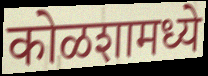
कोळशामध्ये